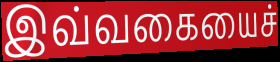
இவ்வகையைச்